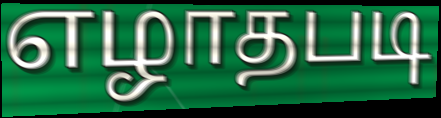
எழாதபடி